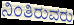
ನಿಂತಿರುವರು